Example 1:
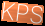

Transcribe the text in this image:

KPS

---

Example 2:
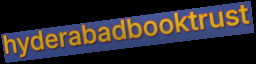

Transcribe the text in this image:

hyderabadbooktrust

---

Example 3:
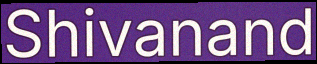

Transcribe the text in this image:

Shivanand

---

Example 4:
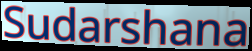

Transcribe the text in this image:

Sudarshana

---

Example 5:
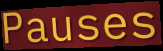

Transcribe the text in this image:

Pauses